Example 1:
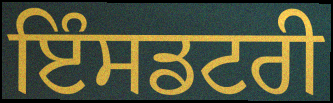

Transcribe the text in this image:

ਇੰਸਡਟਰੀ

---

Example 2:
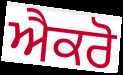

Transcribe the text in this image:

ਐਕਰੋ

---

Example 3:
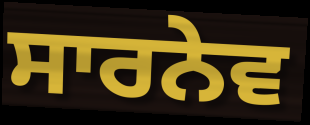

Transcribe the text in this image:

ਸਾਰਨੇਵ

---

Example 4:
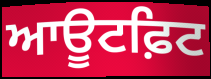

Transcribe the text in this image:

ਆਊਟਫ਼ਿਟ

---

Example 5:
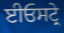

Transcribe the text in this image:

ਈਓਸਟ੍ਰੇ